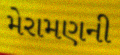
મેરામણની